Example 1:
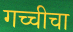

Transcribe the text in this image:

गच्चीचा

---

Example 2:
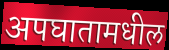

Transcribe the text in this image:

अपघातामधील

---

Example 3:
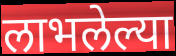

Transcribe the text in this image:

लाभलेल्या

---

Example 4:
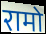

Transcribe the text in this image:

रामो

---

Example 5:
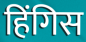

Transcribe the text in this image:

हिंगिस